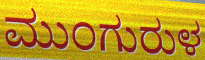
ಮುಂಗುರುಳ